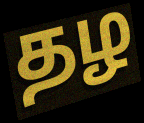
தழ